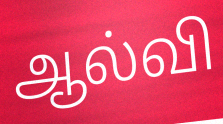
ஆல்வி